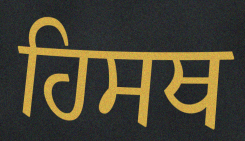
ਹਿਸਥ